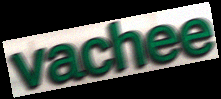
vachee